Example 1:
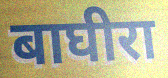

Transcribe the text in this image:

बाघीरा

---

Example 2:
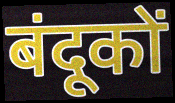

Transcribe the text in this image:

बंदूकों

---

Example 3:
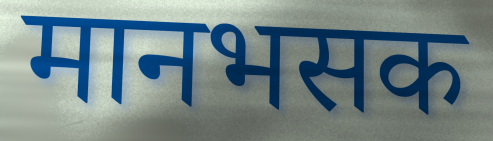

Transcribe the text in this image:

मानभसक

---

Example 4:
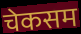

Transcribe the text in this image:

चेकसम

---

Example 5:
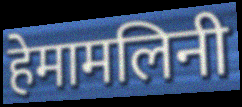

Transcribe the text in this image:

हेमामलिनी